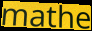
mathe